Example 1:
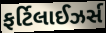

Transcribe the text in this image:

ફર્ટિલાઈઝર્સ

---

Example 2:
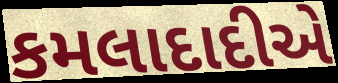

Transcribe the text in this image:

કમલાદાદીએ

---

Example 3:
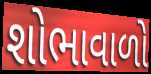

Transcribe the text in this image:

શોભાવાળો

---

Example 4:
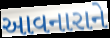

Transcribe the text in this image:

આવનારાને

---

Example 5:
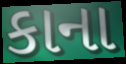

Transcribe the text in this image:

કાના